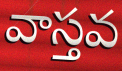
వాస్తవ